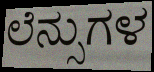
ಲೆನ್ಸುಗಳ